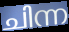
ചിന്ന